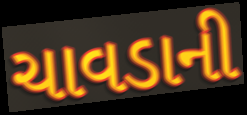
ચાવડાની